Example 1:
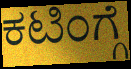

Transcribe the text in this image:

ಕಟಿಂಗ್ಗೆ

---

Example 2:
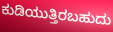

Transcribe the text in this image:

ಕುಡಿಯುತ್ತಿರಬಹುದು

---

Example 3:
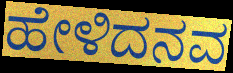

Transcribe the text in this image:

ಹೇಳಿದನವ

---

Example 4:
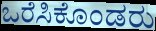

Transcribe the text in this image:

ಒರೆಸಿಕೊಂಡರು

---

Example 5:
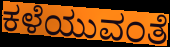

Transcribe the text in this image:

ಕಳೆಯುವಂತೆ